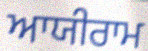
ਆਯੀਰਾਮ